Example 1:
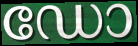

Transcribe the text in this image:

ഡോ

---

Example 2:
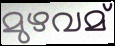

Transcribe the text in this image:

മുഴവമ്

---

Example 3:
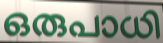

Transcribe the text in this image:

ഒരുപാധി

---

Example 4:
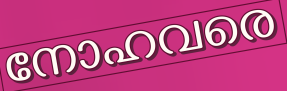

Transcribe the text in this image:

നോഹവരെ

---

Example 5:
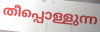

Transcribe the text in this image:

തീപ്പൊള്ളുന്ന